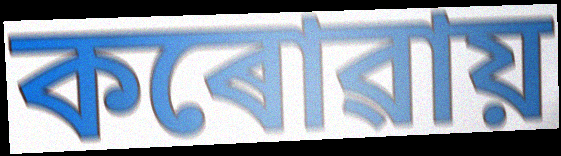
কৰোৱায়